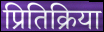
प्रितिक्रिया